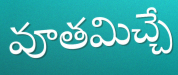
వూతమిచ్చే